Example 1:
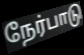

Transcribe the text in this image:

நேர்பாடு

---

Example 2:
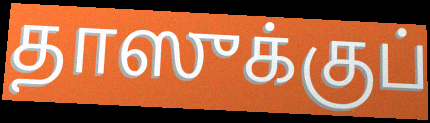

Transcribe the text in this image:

தாஸுக்குப்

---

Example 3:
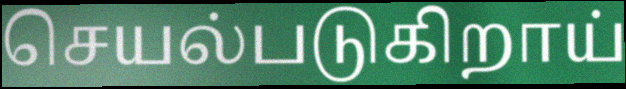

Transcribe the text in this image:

செயல்படுகிறாய்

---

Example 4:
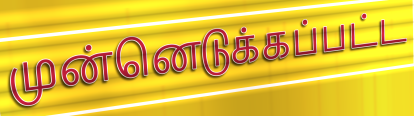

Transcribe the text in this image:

முன்னெடுக்கப்பட்ட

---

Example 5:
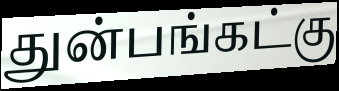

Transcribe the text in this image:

துன்பங்கட்கு